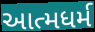
આત્મધર્મ